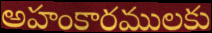
అహంకారములకు